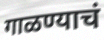
गाळण्याचं